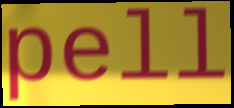
pell